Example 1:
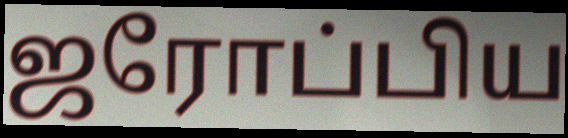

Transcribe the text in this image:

ஜரோப்பிய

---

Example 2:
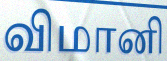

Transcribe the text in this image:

விமானி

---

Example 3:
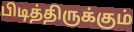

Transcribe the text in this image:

பிடித்திருக்கும்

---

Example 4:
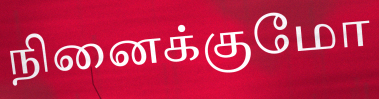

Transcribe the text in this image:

நினைக்குமோ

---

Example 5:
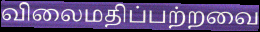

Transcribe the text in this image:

விலைமதிப்பற்றவை